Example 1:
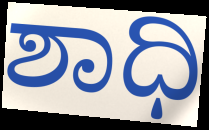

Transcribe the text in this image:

ಶಾಧಿ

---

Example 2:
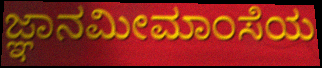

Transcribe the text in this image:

ಜ್ಞಾನಮೀಮಾಂಸೆಯ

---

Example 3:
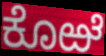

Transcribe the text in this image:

ಕೊಱೆ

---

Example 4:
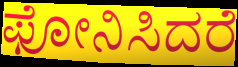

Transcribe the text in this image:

ಫೋನಿಸಿದರೆ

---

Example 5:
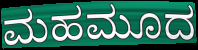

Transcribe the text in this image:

ಮಹಮೂದ